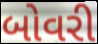
બોવરી